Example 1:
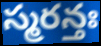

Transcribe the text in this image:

స్మరన్తః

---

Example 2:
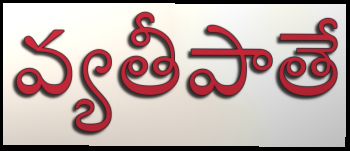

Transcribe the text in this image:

వ్యతీపాతే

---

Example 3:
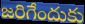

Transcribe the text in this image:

జరిగేందుకు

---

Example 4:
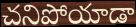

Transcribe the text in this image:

చనిపోయాడా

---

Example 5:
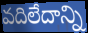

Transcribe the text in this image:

వదిలేదాన్ని